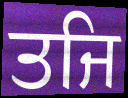
ਤਜਿ